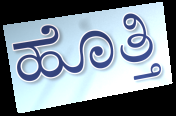
ಹೊತ್ತಿ